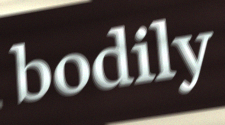
bodily